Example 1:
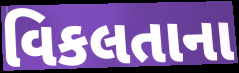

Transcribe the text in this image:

વિકલતાના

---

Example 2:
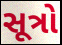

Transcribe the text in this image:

સૂત્રો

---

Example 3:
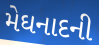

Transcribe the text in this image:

મેઘનાદની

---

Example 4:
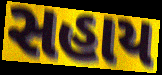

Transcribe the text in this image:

સહાય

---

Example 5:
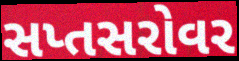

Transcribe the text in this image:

સપ્તસરોવર